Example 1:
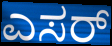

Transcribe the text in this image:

ಎಸರ್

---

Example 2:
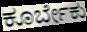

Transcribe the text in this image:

ಕೂರ್ಬೇಕು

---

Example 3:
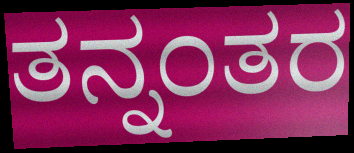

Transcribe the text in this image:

ತನ್ನಂತರ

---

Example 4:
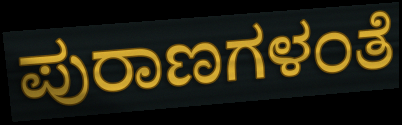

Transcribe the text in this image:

ಪುರಾಣಗಳಂತೆ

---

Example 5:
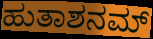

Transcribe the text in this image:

ಹುತಾಶನಮ್